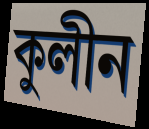
কুলীন